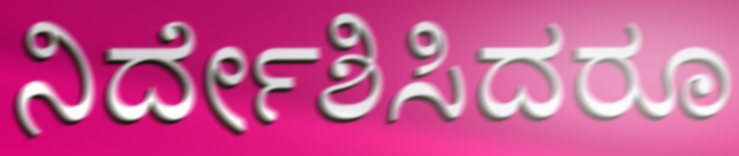
ನಿರ್ದೇಶಿಸಿದರೂ